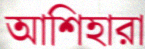
আশিহারা